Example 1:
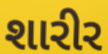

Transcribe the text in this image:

શારીર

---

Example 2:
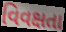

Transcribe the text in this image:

વિવક્ષતા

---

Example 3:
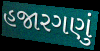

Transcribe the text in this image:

હજારગણું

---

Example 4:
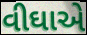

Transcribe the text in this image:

વીઘાએ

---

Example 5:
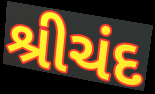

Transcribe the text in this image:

શ્રીચંદ